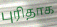
புரிதாக